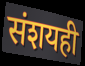
संशयही